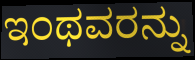
ಇಂಥವರನ್ನು